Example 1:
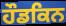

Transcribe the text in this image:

ਹੌਡਕਿਨ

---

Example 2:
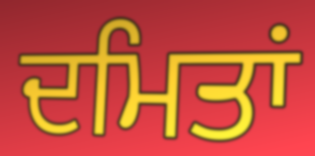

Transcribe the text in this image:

ਦਮਿਤਾਂ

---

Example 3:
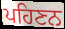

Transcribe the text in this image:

ਪਹਿਣਨ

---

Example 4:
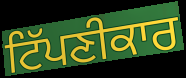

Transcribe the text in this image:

ਟਿੱਪਣੀਕਾਰ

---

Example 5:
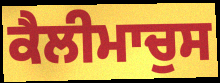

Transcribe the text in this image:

ਕੈਲੀਮਾਚੁਸ